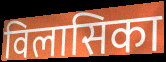
विलासिका